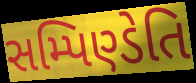
સમ્પિણ્ડેતિ